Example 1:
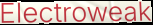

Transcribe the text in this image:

Electroweak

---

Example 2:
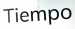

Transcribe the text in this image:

Tiempo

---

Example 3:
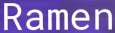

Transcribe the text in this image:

Ramen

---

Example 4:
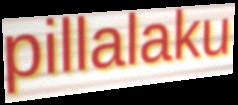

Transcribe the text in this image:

pillalaku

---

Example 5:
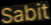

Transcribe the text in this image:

Sabit